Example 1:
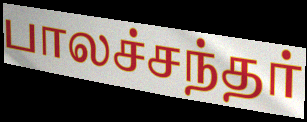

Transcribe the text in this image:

பாலச்சந்தர்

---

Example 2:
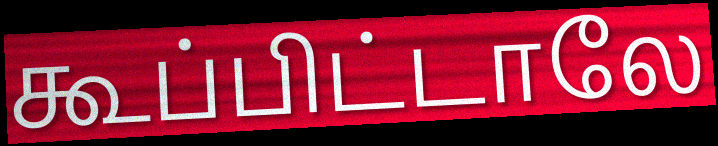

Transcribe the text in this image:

கூப்பிட்டாலே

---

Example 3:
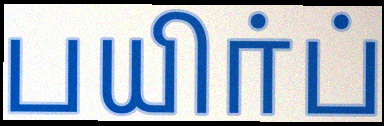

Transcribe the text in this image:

பயிர்ப்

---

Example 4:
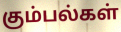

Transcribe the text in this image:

கும்பல்கள்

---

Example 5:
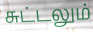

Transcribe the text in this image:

சுட்டலும்